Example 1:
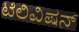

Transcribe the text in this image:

ಟೆಲಿವಿಷನ್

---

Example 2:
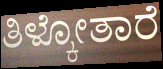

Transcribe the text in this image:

ತಿಳ್ಕೋತಾರೆ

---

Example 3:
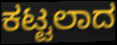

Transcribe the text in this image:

ಕಟ್ಟಲಾದ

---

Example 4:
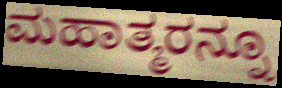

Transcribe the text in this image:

ಮಹಾತ್ಮರನ್ನೂ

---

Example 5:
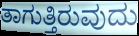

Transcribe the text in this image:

ತಾಗುತ್ತಿರುವುದು